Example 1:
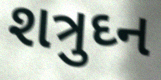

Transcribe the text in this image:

શત્રુઘ્ન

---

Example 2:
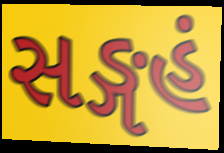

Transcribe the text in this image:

સઙ્ગહં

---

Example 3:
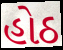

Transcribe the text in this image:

હોઠ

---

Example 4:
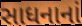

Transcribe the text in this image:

સાધનાનાં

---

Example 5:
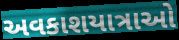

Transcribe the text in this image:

અવકાશયાત્રાઓ